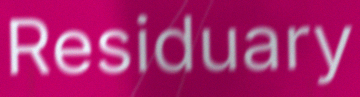
Residuary